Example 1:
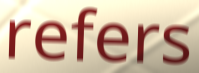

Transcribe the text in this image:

refers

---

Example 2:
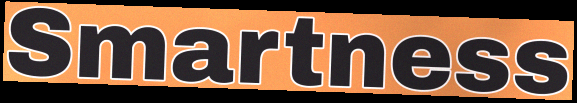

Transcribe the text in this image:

Smartness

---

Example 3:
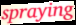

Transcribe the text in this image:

spraying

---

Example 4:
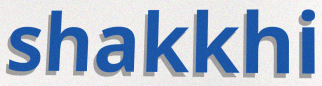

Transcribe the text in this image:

shakkhi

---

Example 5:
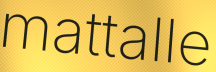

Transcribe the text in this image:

mattalle